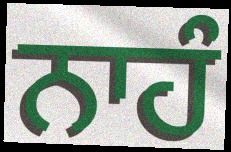
ਨਾਹੰ